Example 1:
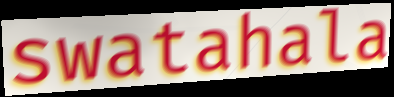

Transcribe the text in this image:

swatahala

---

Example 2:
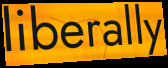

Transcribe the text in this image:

liberally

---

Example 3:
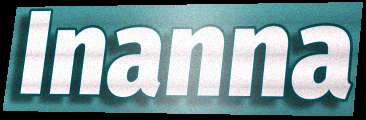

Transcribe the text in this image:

Inanna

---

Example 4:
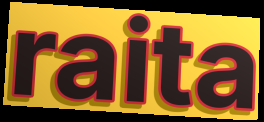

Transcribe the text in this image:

raita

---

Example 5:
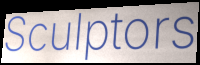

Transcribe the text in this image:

Sculptors